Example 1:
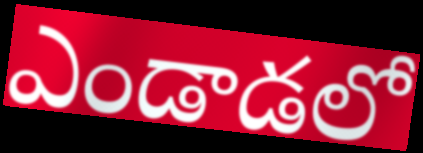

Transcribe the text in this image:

ఎండాడలో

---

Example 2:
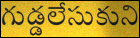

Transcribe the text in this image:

గుడ్డలేసుకుని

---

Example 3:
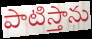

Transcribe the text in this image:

పాటిస్తాను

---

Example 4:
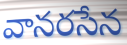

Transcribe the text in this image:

వానరసేన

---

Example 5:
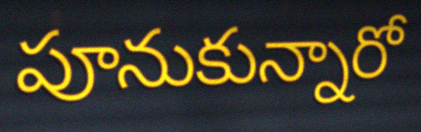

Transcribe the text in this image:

పూనుకున్నారో